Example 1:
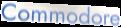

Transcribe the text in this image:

Commodore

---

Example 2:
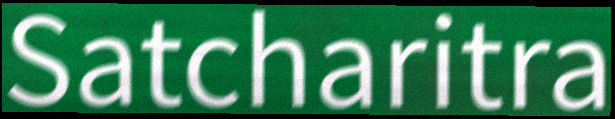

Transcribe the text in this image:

Satcharitra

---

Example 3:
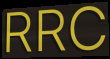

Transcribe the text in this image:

RRC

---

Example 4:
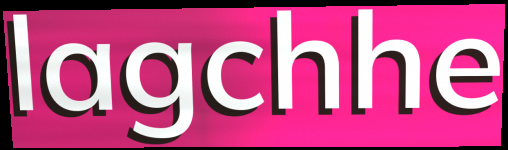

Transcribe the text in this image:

lagchhe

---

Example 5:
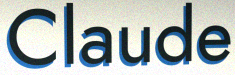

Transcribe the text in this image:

Claude